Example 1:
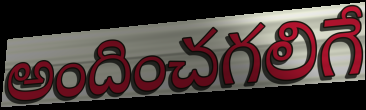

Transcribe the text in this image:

అందించగలిగే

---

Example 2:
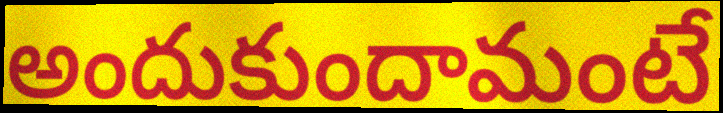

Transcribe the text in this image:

అందుకుందామంటే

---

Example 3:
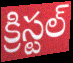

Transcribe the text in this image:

క్రిస్టల్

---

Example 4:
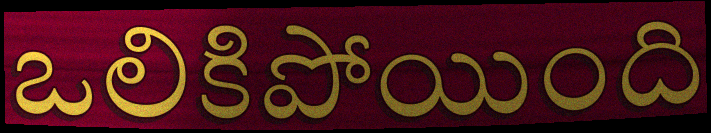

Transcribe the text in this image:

ఒలికిపోయింది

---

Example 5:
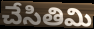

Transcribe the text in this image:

చేసితిమి